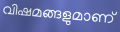
വിഷമങ്ങളുമാണ്